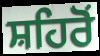
ਸ਼ਹਿਰੋਂ